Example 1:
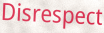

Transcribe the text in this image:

Disrespect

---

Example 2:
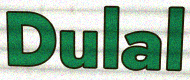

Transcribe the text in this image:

Dulal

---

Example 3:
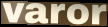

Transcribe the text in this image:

varor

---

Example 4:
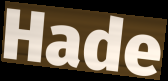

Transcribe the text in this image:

Hade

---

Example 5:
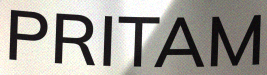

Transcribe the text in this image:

PRITAM